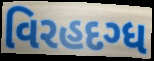
વિરહદગ્ધ